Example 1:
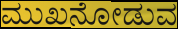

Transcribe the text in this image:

ಮುಖನೋಡುವ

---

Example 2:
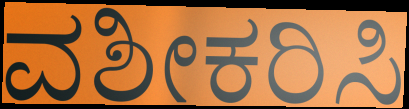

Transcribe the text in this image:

ವಶೀಕರಿಸಿ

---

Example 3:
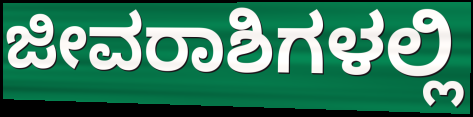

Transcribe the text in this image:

ಜೀವರಾಶಿಗಳಲ್ಲಿ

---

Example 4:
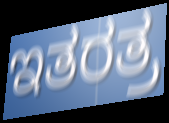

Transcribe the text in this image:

ಇತರತ್ರ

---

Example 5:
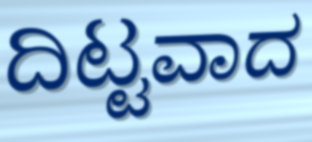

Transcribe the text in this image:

ದಿಟ್ಟವಾದ